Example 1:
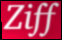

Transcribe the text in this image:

Ziff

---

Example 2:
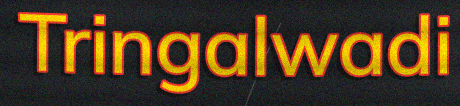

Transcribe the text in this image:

Tringalwadi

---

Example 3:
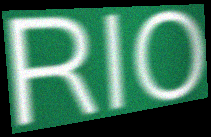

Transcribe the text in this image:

RIO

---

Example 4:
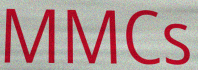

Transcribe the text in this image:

MMCs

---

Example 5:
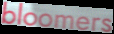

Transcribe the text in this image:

bloomers